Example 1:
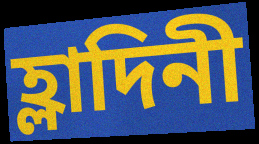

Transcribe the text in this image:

হ্লাদিনী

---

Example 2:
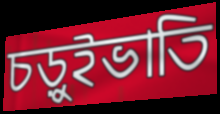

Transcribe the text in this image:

চড়ুইভাতি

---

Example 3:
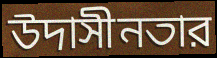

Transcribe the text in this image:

উদাসীনতার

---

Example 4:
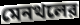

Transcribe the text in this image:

মেনথলের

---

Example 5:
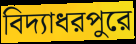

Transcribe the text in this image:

বিদ্যাধরপুরে